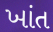
ખાંત